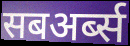
सबअर्ब्स